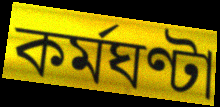
কৰ্মঘণ্টা